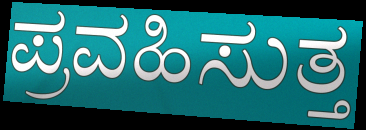
ಪ್ರವಹಿಸುತ್ತ